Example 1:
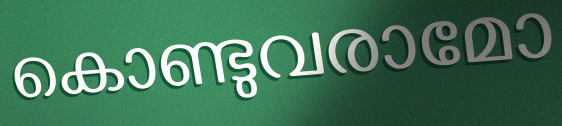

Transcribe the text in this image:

കൊണ്ടുവരാമോ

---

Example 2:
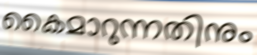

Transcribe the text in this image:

കൈമാറുന്നതിനും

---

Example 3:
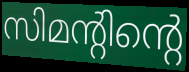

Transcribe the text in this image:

സിമന്റിന്റെ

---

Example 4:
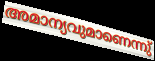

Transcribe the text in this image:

അമാന്യവുമാണെന്നു്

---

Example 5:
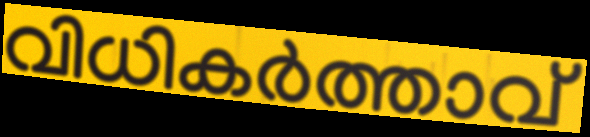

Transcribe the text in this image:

വിധികർത്താവ്